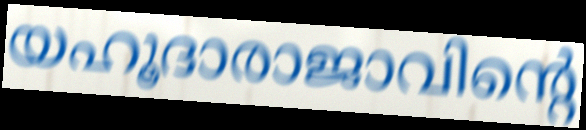
യഹൂദാരാജാവിന്റെ